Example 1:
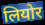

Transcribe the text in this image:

लियोर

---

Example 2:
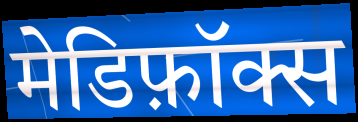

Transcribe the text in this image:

मेडिफ़ॉक्स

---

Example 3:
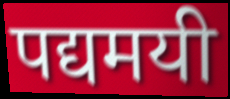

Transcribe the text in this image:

पद्यमयी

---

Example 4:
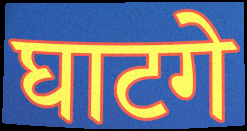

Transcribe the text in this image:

घाटगे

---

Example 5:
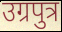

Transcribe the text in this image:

उग्रपुत्र